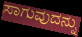
ಸಾಗುವುದನ್ನು